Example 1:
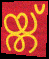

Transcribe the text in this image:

യ്ത്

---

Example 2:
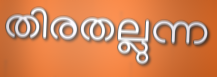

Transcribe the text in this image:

തിരതല്ലുന്ന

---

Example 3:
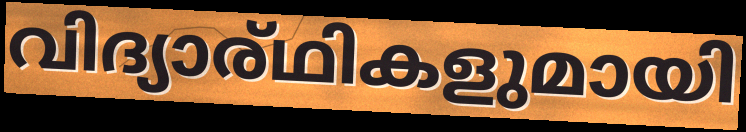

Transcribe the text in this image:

വിദ്യാര്ഥികളുമായി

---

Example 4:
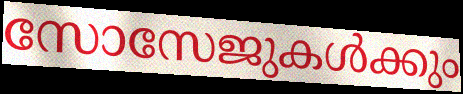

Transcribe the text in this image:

സോസേജുകൾക്കും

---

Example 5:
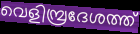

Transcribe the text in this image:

വെളിമ്പ്രദേശത്ത്